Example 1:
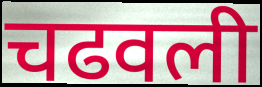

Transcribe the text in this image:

चढवली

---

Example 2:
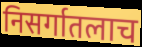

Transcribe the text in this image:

निसर्गातलाच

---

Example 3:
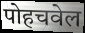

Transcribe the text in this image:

पोहचवेल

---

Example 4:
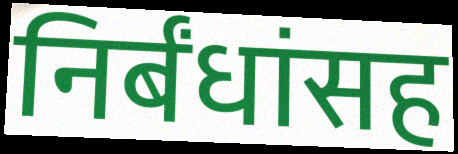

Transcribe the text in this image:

निर्बंधांसह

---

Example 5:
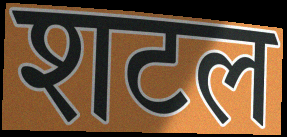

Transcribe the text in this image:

शटल